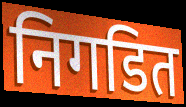
निगडित